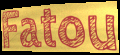
Fatou